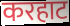
करहाट